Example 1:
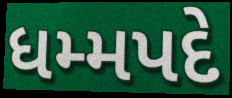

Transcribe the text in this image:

ધમ્મપદે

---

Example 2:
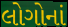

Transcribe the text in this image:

લોગોનાં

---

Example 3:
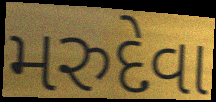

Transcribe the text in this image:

મરુદેવા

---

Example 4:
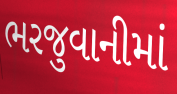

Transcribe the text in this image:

ભરજુવાનીમાં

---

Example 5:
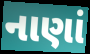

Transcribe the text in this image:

નાણાં